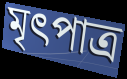
মৃৎপাত্র